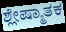
ಶ್ಲೇಷ್ಮಾತಕ